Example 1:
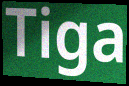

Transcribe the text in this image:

Tiga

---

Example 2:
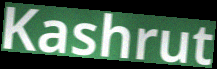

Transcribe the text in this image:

Kashrut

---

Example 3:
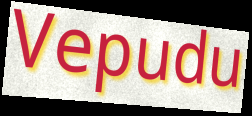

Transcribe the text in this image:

Vepudu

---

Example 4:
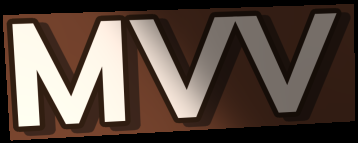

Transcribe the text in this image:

MVV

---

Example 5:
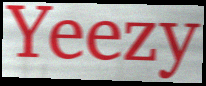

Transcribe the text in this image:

Yeezy